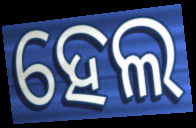
ହେଲ